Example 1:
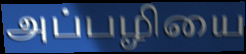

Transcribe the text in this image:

அப்பழியை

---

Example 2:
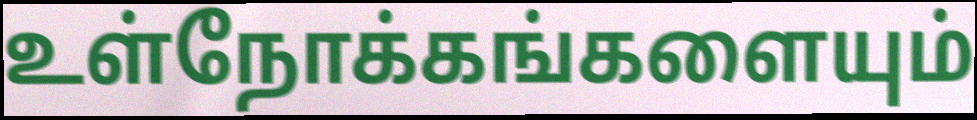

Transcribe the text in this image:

உள்நோக்கங்களையும்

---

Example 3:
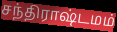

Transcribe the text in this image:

சந்திராஷ்டமம்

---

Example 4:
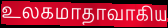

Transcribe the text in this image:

உலகமாதாவாகிய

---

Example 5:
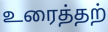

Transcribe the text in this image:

உரைத்தற்